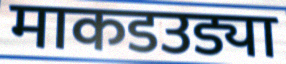
माकडउड्या